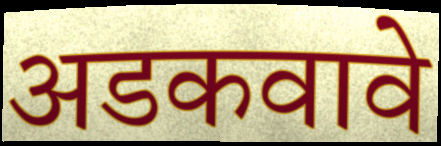
अडकवावे